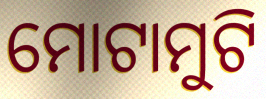
ମୋଟାମୁଟି